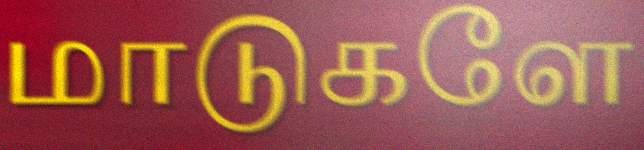
மாடுகளே